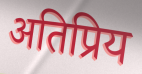
अतिप्रिय